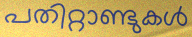
പതിറ്റാണ്ടുകൾ